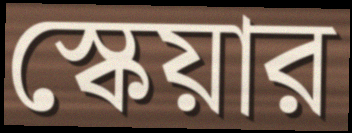
স্কেয়ার